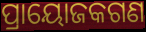
ପ୍ରାୟୋଜକଗଣ